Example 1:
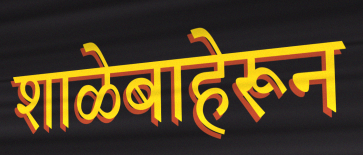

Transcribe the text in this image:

शाळेबाहेरून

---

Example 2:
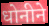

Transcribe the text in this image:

धोनीने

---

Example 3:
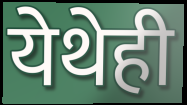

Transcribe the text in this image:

येथेही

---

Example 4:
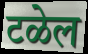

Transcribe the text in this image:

टळेल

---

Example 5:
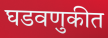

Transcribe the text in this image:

घडवणुकीत